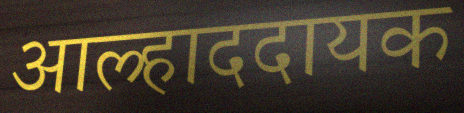
आल्हाददायक